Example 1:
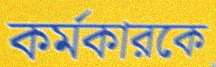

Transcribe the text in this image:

কর্মকারকে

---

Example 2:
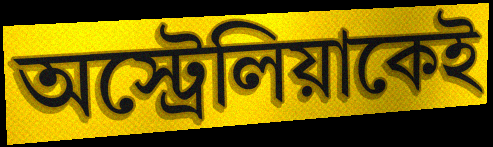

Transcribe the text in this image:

অস্ট্রেলিয়াকেই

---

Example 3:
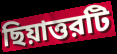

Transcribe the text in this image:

ছিয়াত্তরটি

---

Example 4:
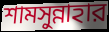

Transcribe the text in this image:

শামসুন্নাহার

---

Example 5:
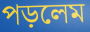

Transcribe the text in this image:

পড়লেম